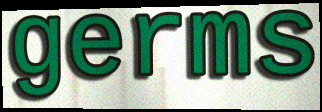
germs